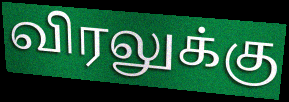
விரலுக்கு